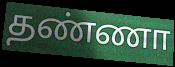
தண்ணா